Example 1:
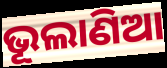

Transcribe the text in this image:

ଭୂଲାଣିଆ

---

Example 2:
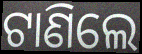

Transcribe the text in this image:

ଟାଣିଲେ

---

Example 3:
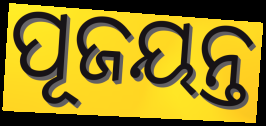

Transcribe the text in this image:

ପୂଜୟନ୍ତ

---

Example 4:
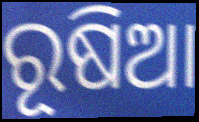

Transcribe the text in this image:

ରୂଷିଆ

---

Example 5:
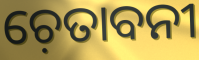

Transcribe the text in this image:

ଚ଼େତାବନୀ